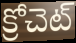
క్రోచెట్